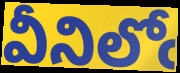
వీనిలోఁ